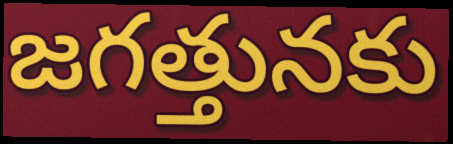
జగత్తునకు